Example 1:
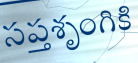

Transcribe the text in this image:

సప్తశృంగికి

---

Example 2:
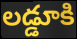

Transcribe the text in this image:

లడ్డూకి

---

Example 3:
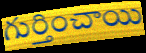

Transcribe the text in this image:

గుర్తించాయి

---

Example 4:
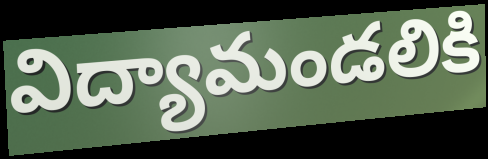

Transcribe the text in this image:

విద్యామండలికి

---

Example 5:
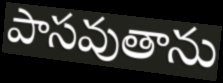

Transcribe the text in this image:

పాసవుతాను